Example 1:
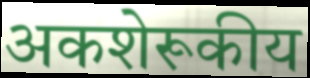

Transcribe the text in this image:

अकशेरूकीय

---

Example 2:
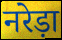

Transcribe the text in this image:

नरेड़ा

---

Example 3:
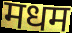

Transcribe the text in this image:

मधम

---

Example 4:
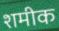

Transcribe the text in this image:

शमीक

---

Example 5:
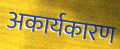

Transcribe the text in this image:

अकार्यकारण